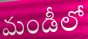
మండీలో